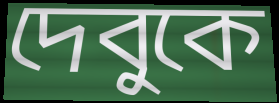
দেবুকে